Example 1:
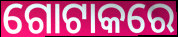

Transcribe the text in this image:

ଗୋଟାକରେ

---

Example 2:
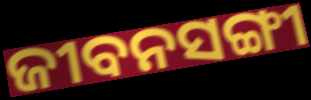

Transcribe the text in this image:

ଜୀବନସଙ୍ଗୀ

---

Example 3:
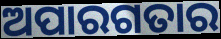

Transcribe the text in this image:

ଅପାରଗତାର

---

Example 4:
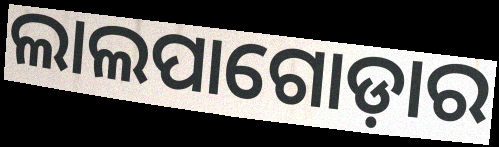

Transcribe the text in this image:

ଲାଲପାଗୋଡ଼ାର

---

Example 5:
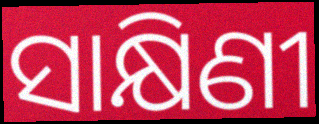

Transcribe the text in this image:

ସାକ୍ଷିଣୀ